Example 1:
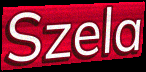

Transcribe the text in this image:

Szela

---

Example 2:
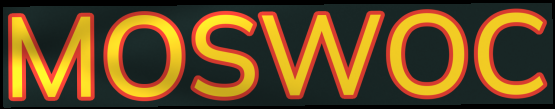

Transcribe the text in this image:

MOSWOC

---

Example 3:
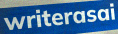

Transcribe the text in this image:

writerasai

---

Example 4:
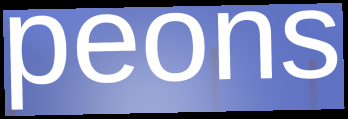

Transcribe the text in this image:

peons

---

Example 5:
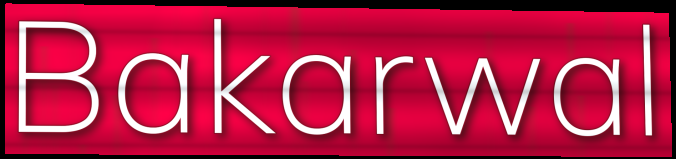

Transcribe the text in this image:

Bakarwal